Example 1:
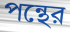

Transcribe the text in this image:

পন্থের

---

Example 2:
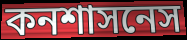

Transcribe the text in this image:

কনশাসনেস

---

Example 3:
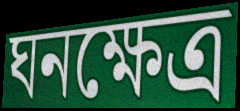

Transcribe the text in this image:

ঘনক্ষেত্র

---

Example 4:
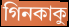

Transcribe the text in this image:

গিনকাকু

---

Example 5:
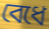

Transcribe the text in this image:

বেধে